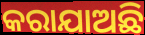
କରାଯାଅଛି